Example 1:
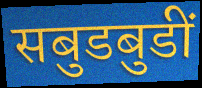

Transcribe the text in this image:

सबुडबुडीं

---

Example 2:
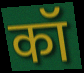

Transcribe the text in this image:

कॉ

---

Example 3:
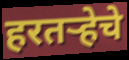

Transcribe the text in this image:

हरतऱ्हेचे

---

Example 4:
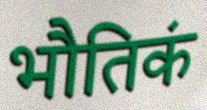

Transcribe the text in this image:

भौतिकं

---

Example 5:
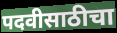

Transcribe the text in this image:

पदवीसाठीचा